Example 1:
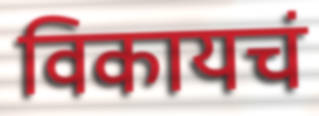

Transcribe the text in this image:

विकायचं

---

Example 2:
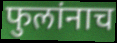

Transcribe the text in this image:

फुलांनाच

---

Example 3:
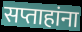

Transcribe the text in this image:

सप्ताहांना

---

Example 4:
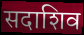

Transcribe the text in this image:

सदाशिव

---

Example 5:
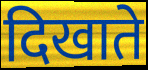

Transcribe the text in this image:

दिखाते